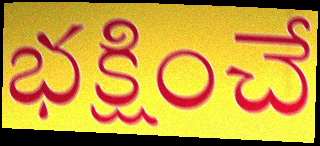
భక్షించే